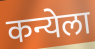
कन्येला